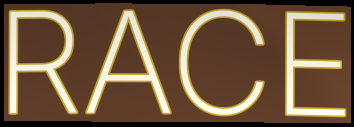
RACE